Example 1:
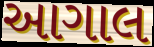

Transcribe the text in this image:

આગાલ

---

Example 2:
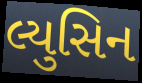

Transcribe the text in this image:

લ્યુસિન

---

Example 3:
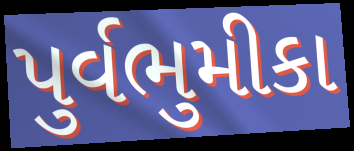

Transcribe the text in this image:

પુર્વભુમીકા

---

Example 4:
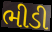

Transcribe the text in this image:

ભીડી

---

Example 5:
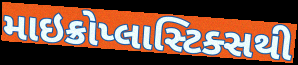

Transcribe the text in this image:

માઇક્રોપ્લાસ્ટિક્સથી